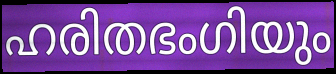
ഹരിതഭംഗിയും